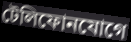
টেলিফোনযোগে